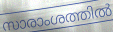
സാരാംശത്തിൽ